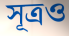
সূত্রও